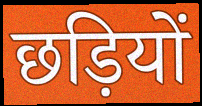
छड़ियों